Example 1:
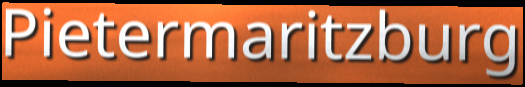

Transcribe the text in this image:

Pietermaritzburg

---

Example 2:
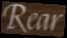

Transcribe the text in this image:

Rear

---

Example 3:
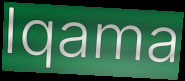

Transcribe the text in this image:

Iqama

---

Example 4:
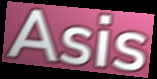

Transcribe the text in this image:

Asis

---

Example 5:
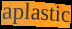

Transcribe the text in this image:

aplastic